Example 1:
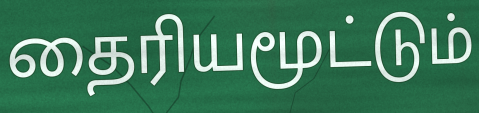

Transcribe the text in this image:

தைரியமூட்டும்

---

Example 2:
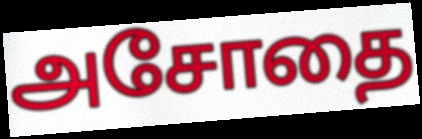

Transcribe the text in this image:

அசோதை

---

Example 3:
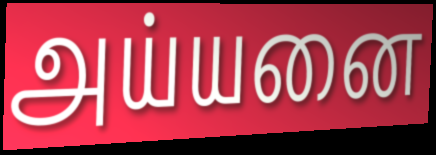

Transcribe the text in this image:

அய்யனை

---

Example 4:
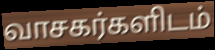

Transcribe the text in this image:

வாசகர்களிடம்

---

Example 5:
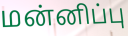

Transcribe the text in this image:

மன்னிப்பு